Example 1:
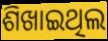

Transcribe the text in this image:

ଶିଖାଇଥିଲ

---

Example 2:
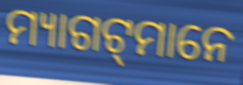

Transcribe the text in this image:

ମ୍ୟାଗଟ୍‌ମାନେ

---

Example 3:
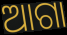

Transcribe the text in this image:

ଆଗା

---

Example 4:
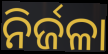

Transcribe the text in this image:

ନିର୍ଜଳା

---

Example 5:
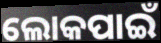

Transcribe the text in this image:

ଲୋକପାଇଁ